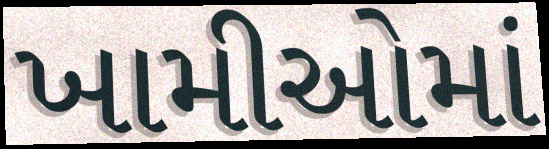
ખામીઓમાં